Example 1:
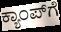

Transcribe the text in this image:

ಕ್ಯಾಂಪ್‍ಗೆ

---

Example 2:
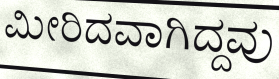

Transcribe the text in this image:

ಮೀರಿದವಾಗಿದ್ದವು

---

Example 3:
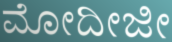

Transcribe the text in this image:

ಮೋದೀಜೀ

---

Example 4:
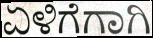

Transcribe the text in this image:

ಏಳಿಗೆಗಾಗಿ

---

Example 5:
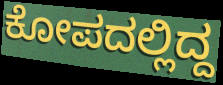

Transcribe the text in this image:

ಕೋಪದಲ್ಲಿದ್ದ